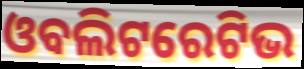
ଓବଲିଟରେଟିଭ